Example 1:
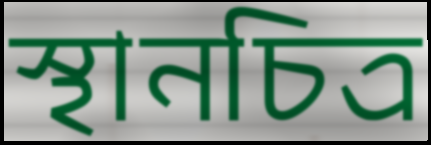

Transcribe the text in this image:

স্থানচিত্র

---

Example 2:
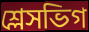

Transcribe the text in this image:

শ্লেসভিগ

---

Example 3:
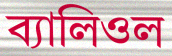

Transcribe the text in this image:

ব্যালিওল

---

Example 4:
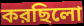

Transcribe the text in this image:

করছিলো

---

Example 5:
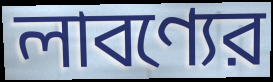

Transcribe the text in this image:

লাবণ্যের